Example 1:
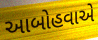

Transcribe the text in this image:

આબોહવાએ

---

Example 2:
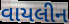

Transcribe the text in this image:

વાયલીન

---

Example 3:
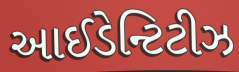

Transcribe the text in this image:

આઈડેન્ટિટીઝ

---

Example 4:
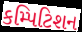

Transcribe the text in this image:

કમ્પિટિશન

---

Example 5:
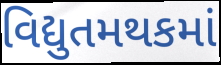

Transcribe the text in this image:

વિદ્યુતમથકમાં